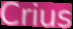
Crius